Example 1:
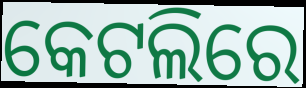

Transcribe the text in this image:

କେଟଲିରେ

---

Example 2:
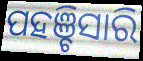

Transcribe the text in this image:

ପହଞ୍ଚିସାରି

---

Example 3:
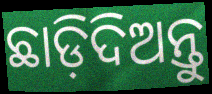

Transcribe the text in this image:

ଛାଡ଼ିଦିଅନ୍ତୁ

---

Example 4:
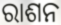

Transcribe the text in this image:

ରାଶନ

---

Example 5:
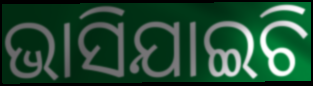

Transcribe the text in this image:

ଭାସିଯାଇଚି